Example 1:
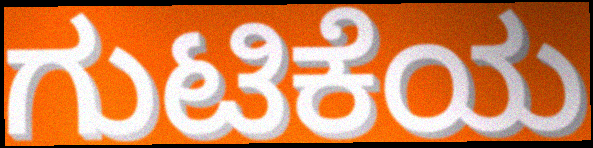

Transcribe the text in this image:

ಗುಟಿಕೆಯ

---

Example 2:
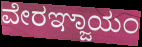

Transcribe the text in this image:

ವೇರಞ್ಜಾಯಂ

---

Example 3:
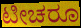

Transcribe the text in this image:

ಟೀಚರೂ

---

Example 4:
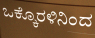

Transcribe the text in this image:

ಒಕ್ಕೊರಳಿನಿಂದ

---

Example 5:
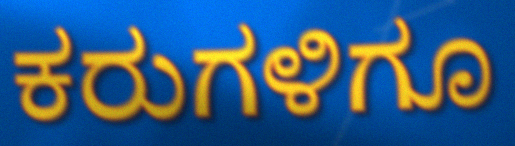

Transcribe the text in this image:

ಕರುಗಳಿಗೂ